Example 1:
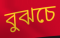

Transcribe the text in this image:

বুঝচে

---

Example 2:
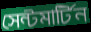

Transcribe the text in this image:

সেন্টমার্টিন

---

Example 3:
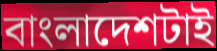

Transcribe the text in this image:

বাংলাদেশটাই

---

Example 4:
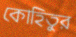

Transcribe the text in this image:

কোহিতুর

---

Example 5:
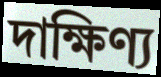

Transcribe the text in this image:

দাক্ষিণ্য